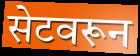
सेटवरून